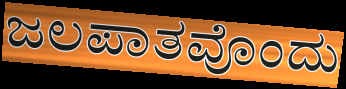
ಜಲಪಾತವೊಂದು